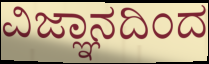
ವಿಜ್ಞಾನದಿಂದ